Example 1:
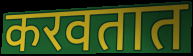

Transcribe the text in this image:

करवतात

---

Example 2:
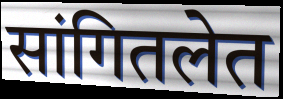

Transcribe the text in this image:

सांगितलेत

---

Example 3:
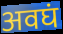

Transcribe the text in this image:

अवघं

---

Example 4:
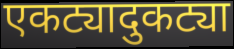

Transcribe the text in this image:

एकट्यादुकट्या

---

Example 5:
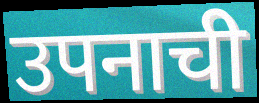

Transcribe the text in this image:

उपनाची